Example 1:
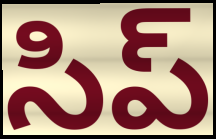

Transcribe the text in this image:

సిప్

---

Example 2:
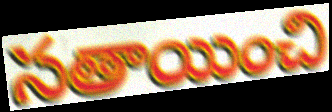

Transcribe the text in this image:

సతాయించి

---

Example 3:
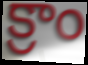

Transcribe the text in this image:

క్రాం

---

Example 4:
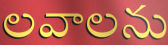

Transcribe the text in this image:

లవాలను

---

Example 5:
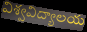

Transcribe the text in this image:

విశ్వవిద్యాలయ